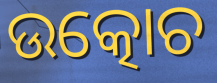
ଉତ୍କୋଚ